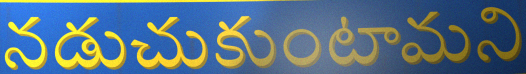
నడుచుకుంటామని